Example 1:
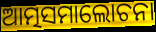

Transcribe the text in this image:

ଆତ୍ମସମାଲୋଚନା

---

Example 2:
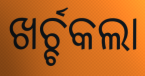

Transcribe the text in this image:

ଖର୍ଚ୍ଚକଲା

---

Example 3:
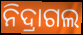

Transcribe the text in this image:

ନିଦ୍ରାଗଲ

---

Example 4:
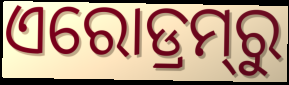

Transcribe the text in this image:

ଏରୋଡ୍ରମ୍‍ରୁ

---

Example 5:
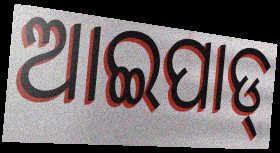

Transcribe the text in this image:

ଆଇପାଡ୍